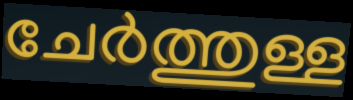
ചേർത്തുള്ള